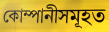
কোম্পানীসমূহত